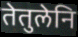
तेतुलेनि